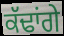
ਕੱਢਾਂਗੇ